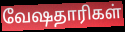
வேஷதாரிகள்